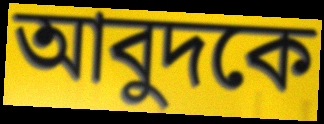
আবুদকে